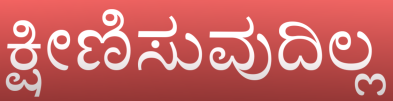
ಕ್ಷೀಣಿಸುವುದಿಲ್ಲ